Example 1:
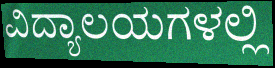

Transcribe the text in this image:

ವಿದ್ಯಾಲಯಗಳಲ್ಲಿ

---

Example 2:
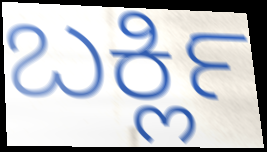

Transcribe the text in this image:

ಬರ್ಕ್ಲಿ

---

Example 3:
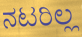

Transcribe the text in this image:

ನಟರಿಲ್ಲ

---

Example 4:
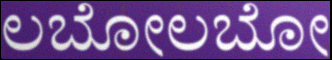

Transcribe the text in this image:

ಲಬೋಲಬೋ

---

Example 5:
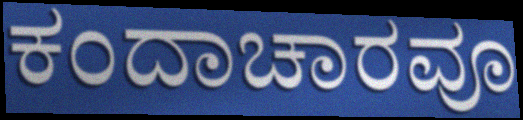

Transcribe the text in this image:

ಕಂದಾಚಾರವೂ